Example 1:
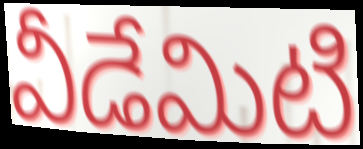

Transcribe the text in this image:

వీడేమిటి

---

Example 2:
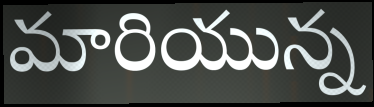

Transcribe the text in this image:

మారియున్న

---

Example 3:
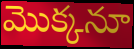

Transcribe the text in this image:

మొక్కనూ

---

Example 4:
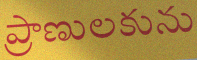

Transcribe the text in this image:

ప్రాణులకును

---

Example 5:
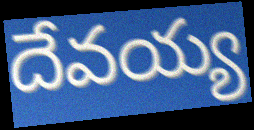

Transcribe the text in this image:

దేవయ్య